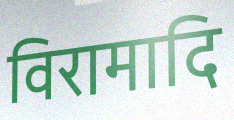
विरामादि